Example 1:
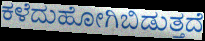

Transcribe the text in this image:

ಕಳೆದುಹೋಗಿಬಿಡುತ್ತದೆ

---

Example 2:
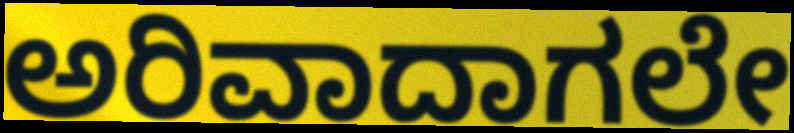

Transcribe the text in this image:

ಅರಿವಾದಾಗಲೇ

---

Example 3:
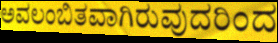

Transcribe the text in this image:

ಅವಲಂಬಿತವಾಗಿರುವುದರಿಂದ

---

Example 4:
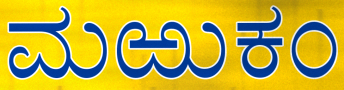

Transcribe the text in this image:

ಮಱುಕಂ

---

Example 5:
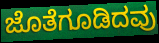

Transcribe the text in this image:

ಜೊತೆಗೂಡಿದವು